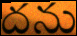
దను